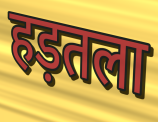
हड़तला